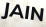
JAIN